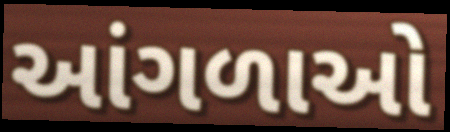
આંગળાઓ